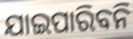
ଯାଇପାରିବନି